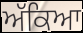
ਅੱਕਿਆ